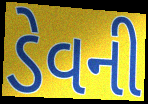
ડેવની